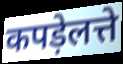
कपड़ेलत्ते